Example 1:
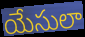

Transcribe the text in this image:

యేసులా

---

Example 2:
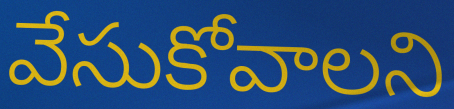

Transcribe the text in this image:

వేసుకోవాలని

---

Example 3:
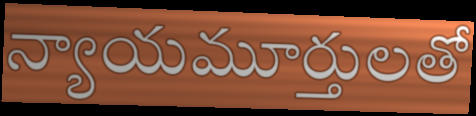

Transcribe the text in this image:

న్యాయమూర్తులతో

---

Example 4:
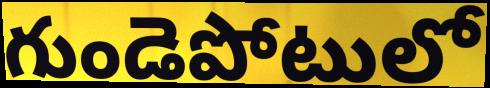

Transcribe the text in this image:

గుండెపోటులో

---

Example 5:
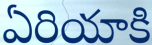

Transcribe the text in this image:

ఏరియాకి